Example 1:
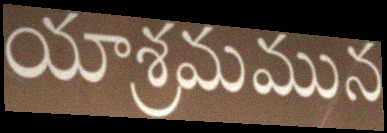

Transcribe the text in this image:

యాశ్రమమున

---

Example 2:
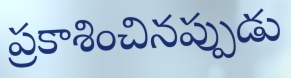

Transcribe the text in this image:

ప్రకాశించినప్పుడు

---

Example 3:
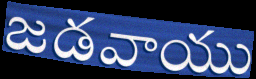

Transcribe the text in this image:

జడవాయు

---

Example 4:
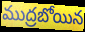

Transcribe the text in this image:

ముద్రబోయిన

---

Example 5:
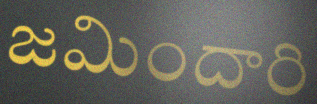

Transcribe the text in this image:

జమిందారి